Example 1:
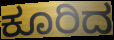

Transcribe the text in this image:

ಕೂರಿದ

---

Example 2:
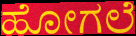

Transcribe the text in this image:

ಹೋಗಲೆ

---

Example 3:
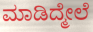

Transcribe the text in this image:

ಮಾಡಿದ್ಮೇಲೆ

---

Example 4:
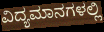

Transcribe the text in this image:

ವಿದ್ಯಮಾನಗಳಲ್ಲಿ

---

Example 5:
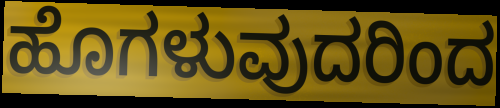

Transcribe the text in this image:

ಹೊಗಳುವುದರಿಂದ